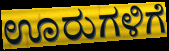
ಊರುಗಳಿಗೆ